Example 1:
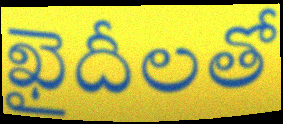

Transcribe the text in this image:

ఖైదీలతో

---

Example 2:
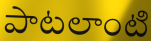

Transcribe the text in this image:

పాటలాంటి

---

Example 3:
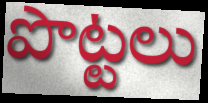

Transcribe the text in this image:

పొట్టలు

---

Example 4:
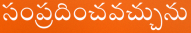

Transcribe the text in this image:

సంప్రదించవచ్చును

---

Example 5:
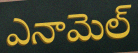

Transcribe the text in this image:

ఎనామెల్